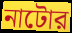
নাটোর